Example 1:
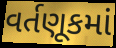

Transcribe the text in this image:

વર્તણૂકમાં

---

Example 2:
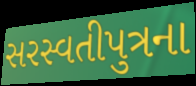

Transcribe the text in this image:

સરસ્વતીપુત્રના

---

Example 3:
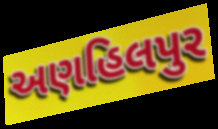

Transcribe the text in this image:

અણહિલપુર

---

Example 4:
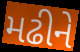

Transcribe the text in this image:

મઢીને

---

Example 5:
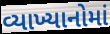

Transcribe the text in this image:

વ્યાખ્યાનોમાં